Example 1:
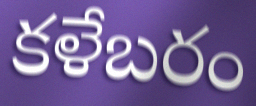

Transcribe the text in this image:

కళేబరం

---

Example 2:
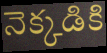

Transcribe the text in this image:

నెక్కడికి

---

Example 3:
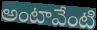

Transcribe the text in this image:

అంటావేంటి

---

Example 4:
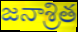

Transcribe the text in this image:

జనాశ్రిత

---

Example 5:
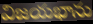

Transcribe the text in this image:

విజయభాను